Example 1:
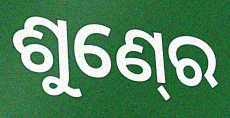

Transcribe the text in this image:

ଶୁଣ୍‍ରେ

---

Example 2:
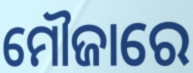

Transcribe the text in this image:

ମୌଜାରେ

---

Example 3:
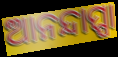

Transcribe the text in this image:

ଆନନ୍ଦାପ୍ପା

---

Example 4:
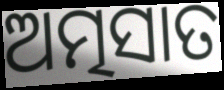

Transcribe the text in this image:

ଅତ୍ମସାତ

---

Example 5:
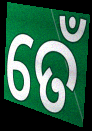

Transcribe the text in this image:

ତେଁ